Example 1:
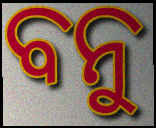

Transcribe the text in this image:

ବନୁ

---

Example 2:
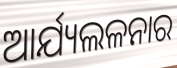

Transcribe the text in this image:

ଆର୍ଯ୍ୟଲଳନାର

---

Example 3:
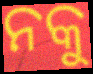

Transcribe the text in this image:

ନକୁ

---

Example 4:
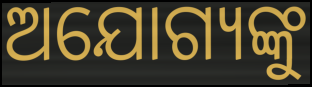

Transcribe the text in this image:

ଅଯୋଗ୍ୟଙ୍କୁ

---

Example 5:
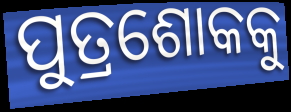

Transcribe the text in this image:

ପୁତ୍ରଶୋକକୁ